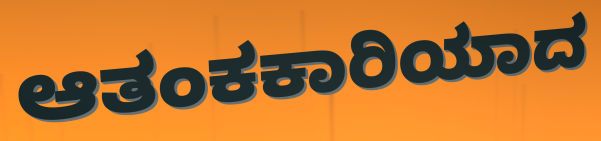
ಆತಂಕಕಾರಿಯಾದ